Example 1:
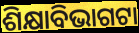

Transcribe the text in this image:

ଶିକ୍ଷାବିଭାଗଟା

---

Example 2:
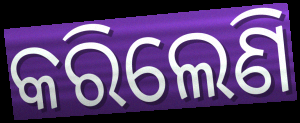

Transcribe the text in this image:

କରିଲେଣି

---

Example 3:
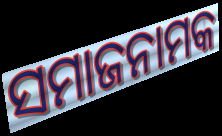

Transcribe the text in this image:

ସମାଜନାମକ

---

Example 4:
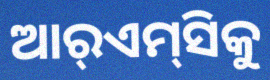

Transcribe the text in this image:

ଆର୍‌ଏମ୍‌ସିକୁ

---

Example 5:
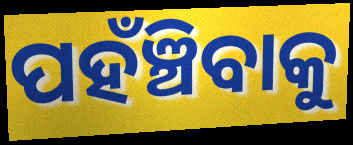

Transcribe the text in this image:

ପହଁଞ୍ଚିବାକୁ